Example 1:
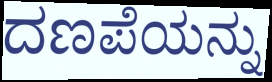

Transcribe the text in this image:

ದಣಪೆಯನ್ನು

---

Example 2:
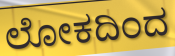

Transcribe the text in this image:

ಲೋಕದಿಂದ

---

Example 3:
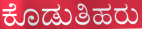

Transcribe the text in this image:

ಕೊಡುತಿಹರು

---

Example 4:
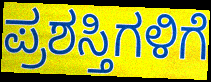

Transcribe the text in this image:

ಪ್ರಶಸ್ತಿಗಳಿಗೆ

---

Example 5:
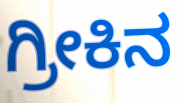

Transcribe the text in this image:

ಗ್ರೀಕಿನ